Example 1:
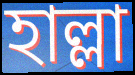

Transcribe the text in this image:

হাল্লা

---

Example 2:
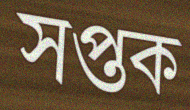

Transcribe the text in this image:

সপ্তক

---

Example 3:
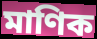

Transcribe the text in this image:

মাণিক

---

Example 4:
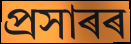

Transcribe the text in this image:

প্ৰসাৰৰ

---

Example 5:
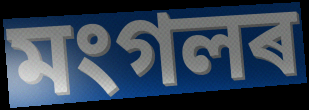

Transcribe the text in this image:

মংগলৰ